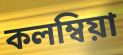
কলম্বিয়া